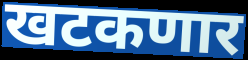
खटकणार